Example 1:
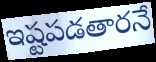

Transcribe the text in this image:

ఇష్టపడతారనే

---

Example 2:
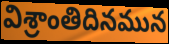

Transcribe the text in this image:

విశ్రాంతిదినమున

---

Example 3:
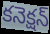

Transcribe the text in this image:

కనెక్షన్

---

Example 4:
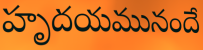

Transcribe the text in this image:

హృదయమునందే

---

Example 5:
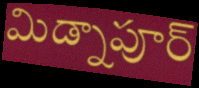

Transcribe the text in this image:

మిడ్నాపూర్